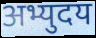
अभ्युदय